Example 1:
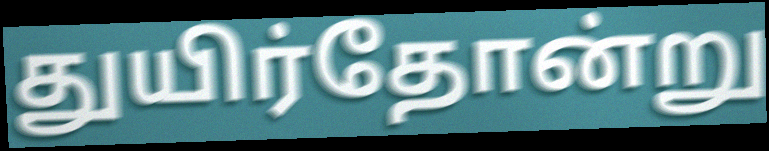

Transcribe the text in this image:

துயிர்தோன்று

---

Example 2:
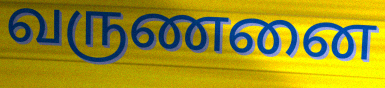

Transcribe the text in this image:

வருணனை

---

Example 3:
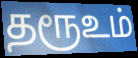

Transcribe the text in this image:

தரூஉம்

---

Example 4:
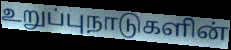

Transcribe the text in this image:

உறுப்புநாடுகளின்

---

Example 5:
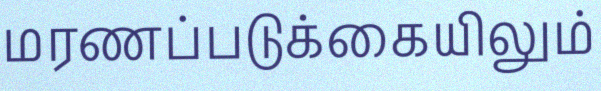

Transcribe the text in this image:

மரணப்படுக்கையிலும்